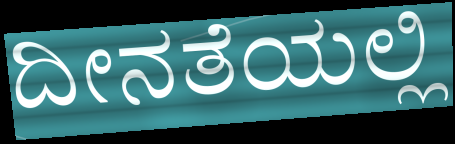
ದೀನತೆಯಲ್ಲಿ